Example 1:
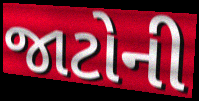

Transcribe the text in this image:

જાટોની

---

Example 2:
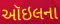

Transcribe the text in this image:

ઑઇલના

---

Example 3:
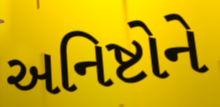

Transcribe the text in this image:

અનિષ્ટોને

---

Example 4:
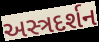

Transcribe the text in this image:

અસ્ત્રદર્શન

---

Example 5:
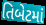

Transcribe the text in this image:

તિબેટમાં